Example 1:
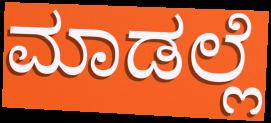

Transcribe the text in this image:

ಮಾಡಲ್ಲೆ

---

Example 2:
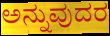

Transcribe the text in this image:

ಅನ್ನುವುದರ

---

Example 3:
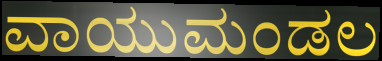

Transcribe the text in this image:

ವಾಯುಮಂಡಲ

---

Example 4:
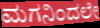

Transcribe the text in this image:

ಮಗನಿಂದಲೇ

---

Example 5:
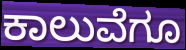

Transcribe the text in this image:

ಕಾಲುವೆಗೂ